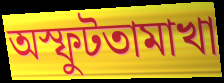
অস্ফুটতামাখা